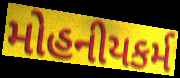
મોહનીયકર્મ